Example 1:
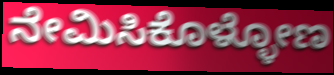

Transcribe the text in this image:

ನೇಮಿಸಿಕೊಳ್ಳೋಣ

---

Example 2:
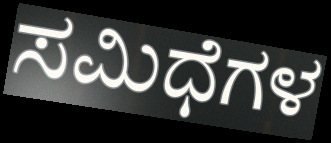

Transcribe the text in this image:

ಸಮಿಧೆಗಳ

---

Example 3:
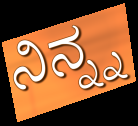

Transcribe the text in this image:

ನಿನ್ನ್ನ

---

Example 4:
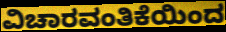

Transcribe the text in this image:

ವಿಚಾರವಂತಿಕೆಯಿಂದ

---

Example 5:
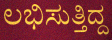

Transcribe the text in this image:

ಲಭಿಸುತ್ತಿದ್ದ